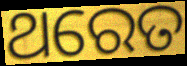
ଥରେତ